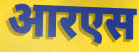
आरएस